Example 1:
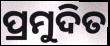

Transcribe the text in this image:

ପ୍ରମୁଦିତ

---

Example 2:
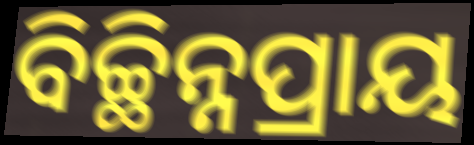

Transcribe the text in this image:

ବିଚ୍ଛିନ୍ନପ୍ରାୟ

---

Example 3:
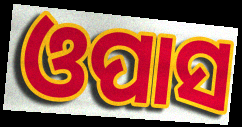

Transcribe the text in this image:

ଓପାସ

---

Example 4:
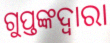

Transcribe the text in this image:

ଗୁପ୍ତଙ୍କଦ୍ୱାରା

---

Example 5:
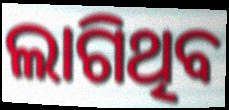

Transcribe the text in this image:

ଲାଗିଥିବ